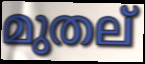
മുതല്